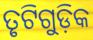
ତୃଟିଗୁଡ଼ିକ